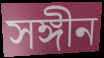
সঙ্গীন